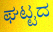
ಘಟ್ಟದ